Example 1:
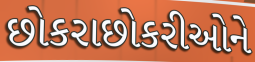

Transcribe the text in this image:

છોકરાછોકરીઓને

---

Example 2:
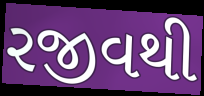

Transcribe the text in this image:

રજીવથી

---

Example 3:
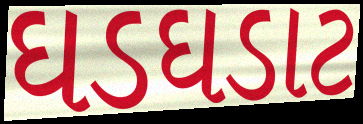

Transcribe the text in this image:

ઘડઘડાટ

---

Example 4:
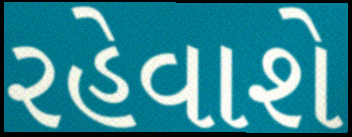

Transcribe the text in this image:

રહેવાશે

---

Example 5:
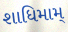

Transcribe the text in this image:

શાધિમામ્